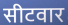
सीटवार